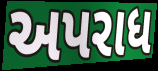
અપરાધ